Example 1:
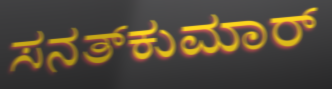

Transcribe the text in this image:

ಸನತ್‌ಕುಮಾರ್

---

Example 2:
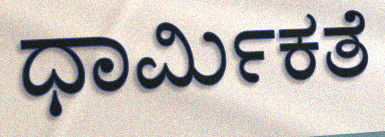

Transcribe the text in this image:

ಧಾರ್ಮಿಕತೆ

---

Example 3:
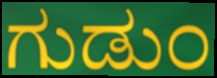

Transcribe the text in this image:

ಗುಡುಂ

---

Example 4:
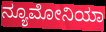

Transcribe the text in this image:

ನ್ಯೂಮೋನಿಯಾ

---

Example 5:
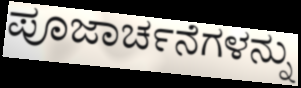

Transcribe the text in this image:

ಪೂಜಾರ್ಚನೆಗಳನ್ನು